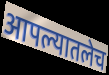
आपल्यातलेच